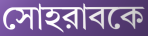
সোহরাবকে